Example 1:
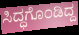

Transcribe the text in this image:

ಸಿದ್ಧಗೊಂಡಿದ್ದ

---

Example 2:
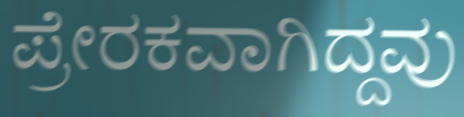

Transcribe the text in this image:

ಪ್ರೇರಕವಾಗಿದ್ದವು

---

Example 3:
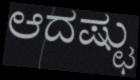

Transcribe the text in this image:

ಆದಷ್ಟು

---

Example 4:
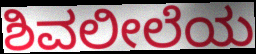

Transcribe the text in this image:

ಶಿವಲೀಲೆಯ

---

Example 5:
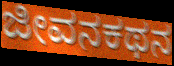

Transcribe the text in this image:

ಜೀವನಕಥನ